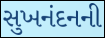
સુખનંદનની